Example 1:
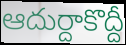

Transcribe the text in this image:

ఆదుర్దాకొద్దీ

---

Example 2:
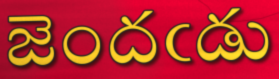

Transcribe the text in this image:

జెందఁడు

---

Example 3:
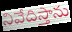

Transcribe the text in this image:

నివేదిస్తాను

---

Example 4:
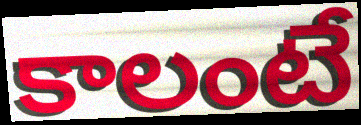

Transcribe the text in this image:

కాలంటే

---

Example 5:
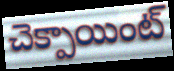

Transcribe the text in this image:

చెక్పాయింట్